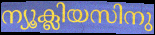
ന്യൂക്ലിയസിനു